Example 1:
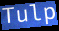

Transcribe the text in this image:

Tulp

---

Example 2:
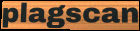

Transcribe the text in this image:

plagscan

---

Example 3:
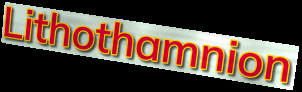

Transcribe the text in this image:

Lithothamnion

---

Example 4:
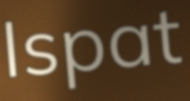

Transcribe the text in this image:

Ispat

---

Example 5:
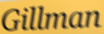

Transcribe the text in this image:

Gillman